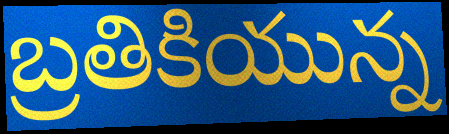
బ్రతికియున్న